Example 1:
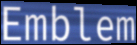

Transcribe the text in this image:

Emblem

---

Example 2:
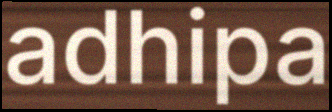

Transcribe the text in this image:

adhipa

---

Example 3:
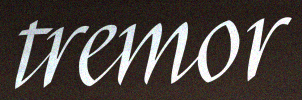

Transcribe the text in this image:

tremor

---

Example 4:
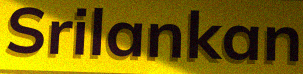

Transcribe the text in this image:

Srilankan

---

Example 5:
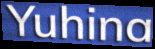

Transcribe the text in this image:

Yuhina